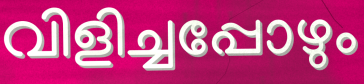
വിളിച്ചപ്പോഴും